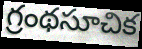
గ్రంథసూచిక